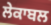
ਲੇਕਾਬਲ